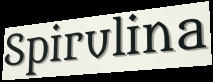
Spirulina